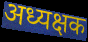
अध्यक्षक